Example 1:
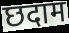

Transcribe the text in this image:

छदाम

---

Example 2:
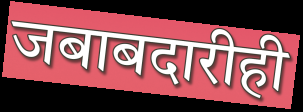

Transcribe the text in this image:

जबाबदारीही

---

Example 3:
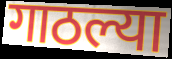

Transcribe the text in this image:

गाठल्या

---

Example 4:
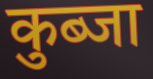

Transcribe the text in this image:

कुब्जा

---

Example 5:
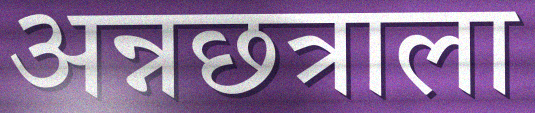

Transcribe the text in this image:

अन्नछत्राला